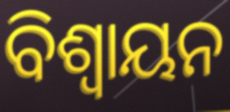
ବିଶ୍ୱାୟନ